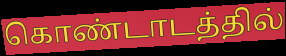
கொண்டாடத்தில்